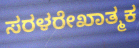
ಸರಳರೇಖಾತ್ಮಕ